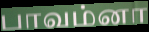
பாவம்னா